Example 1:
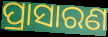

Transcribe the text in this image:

ପ୍ରାସାରଣ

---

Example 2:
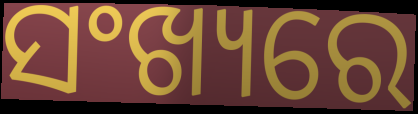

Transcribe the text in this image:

ସଂଖ୍ୟରେ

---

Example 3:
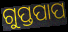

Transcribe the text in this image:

ଗୁପ୍ତପାପ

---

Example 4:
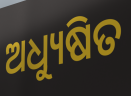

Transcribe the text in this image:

ଅଧ୍ୟୁଷିତ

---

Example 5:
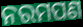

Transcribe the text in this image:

ନରମପଣ